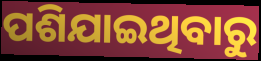
ପଶିଯାଇଥିବାରୁ